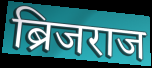
ब्रिजराज